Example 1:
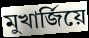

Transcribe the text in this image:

মুখাৰ্জিয়ে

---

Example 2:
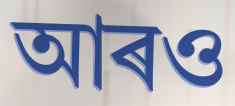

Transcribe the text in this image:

আৰও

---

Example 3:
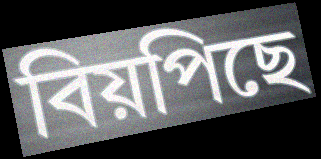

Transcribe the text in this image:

বিয়পিছে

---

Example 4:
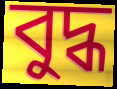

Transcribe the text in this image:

বুদ্ধ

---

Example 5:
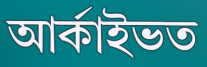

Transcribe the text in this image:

আৰ্কাইভত